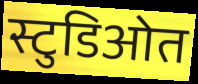
स्टुडिओत